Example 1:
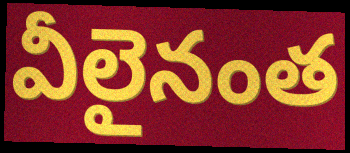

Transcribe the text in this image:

వీలైనంత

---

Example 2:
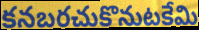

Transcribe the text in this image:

కనబరచుకొనుటకేమి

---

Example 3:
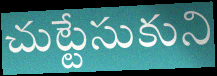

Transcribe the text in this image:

చుట్టేసుకుని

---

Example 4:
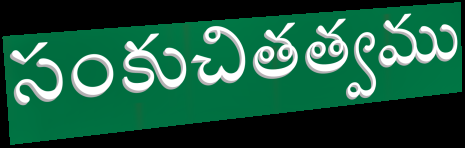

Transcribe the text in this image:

సంకుచితత్వము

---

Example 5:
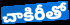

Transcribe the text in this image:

చాకిరీతో